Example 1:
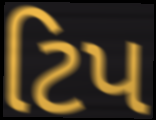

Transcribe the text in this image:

ટિપ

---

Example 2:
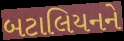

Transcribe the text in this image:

બટાલિયનને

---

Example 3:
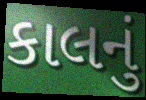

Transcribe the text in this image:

કાલનું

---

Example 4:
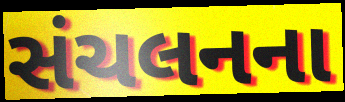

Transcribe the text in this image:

સંચલનના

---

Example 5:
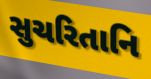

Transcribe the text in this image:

સુચરિતાનિ